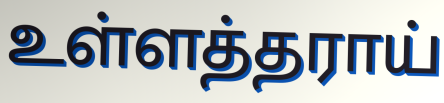
உள்ளத்தராய்